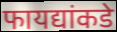
फायद्यांकडे